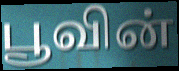
பூவின்